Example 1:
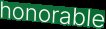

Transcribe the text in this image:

honorable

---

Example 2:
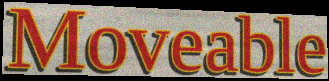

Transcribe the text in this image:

Moveable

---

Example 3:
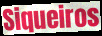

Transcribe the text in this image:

Siqueiros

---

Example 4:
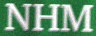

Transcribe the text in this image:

NHM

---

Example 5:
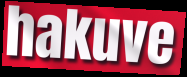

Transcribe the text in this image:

hakuve